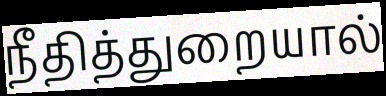
நீதித்துறையால்